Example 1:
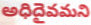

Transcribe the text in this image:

అధిదైవమని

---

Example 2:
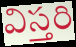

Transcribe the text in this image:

విస్తరి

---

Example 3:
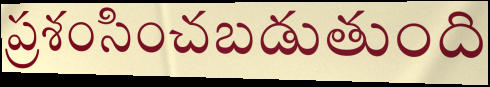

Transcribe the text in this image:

ప్రశంసించబడుతుంది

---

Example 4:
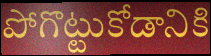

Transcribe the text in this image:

పోగొట్టుకోడానికి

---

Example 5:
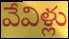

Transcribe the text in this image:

వేవిళ్లు